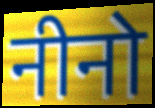
नीनो